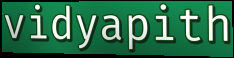
vidyapith